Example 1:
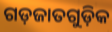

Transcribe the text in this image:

ଗଡ଼ଜାତଗୁଡ଼ିକ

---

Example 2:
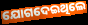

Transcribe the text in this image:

ଯୋଗଦେଇଥିଲେ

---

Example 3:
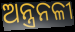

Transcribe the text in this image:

ଅନ୍ତ୍ରନଳୀ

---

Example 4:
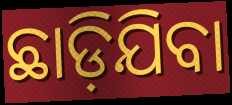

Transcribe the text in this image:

ଛାଡ଼ିଯିବା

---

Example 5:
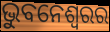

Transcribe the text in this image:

ଭୁବନେଶ୍ବରର